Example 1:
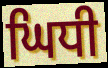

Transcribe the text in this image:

ਘਿਧੀ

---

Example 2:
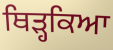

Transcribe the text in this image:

ਥਿੜ੍ਹਕਿਆ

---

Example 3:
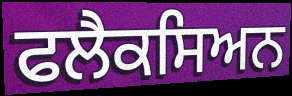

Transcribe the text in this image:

ਫਲੈਕਸਿਅਨ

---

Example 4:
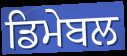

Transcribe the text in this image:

ਡਿਮੇਬਲ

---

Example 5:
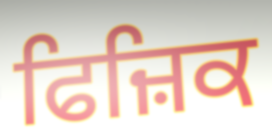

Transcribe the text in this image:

ਫਿਜ਼ਿਕ